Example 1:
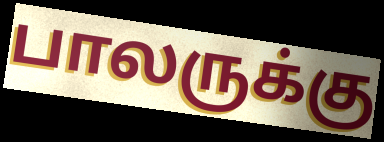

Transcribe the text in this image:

பாலருக்கு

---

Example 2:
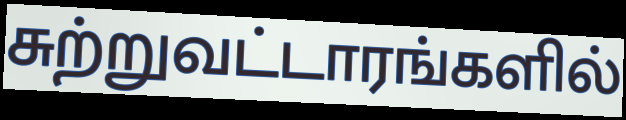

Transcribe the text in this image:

சுற்றுவட்டாரங்களில்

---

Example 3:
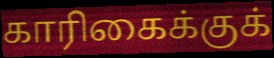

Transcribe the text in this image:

காரிகைக்குக்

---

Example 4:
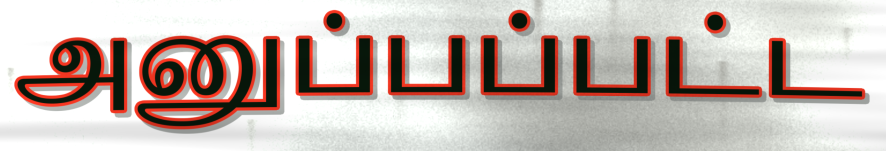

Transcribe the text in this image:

அனுப்பப்பட்ட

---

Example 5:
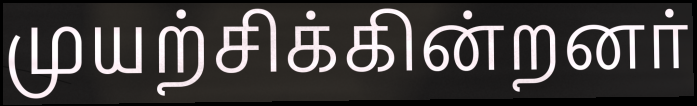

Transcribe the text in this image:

முயற்சிக்கின்றனர்